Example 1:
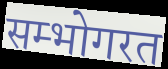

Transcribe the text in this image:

सम्भोगरत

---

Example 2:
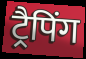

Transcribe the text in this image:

ट्रैपिंग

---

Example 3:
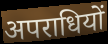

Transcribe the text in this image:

अपराधियों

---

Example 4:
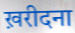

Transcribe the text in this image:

ख़रीदना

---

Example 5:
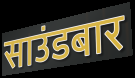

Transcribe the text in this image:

साउंडबार